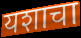
यशाचा